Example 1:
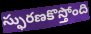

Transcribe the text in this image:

స్ఫురణకొస్తోంది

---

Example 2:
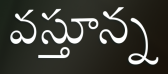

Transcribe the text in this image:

వస్తూన్న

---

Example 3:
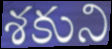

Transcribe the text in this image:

శకుని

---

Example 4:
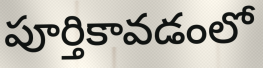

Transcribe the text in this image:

పూర్తికావడంలో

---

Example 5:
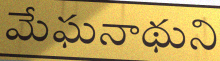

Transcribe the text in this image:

మేఘనాథుని